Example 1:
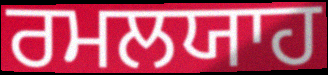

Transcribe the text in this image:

ਰਮਲਯਾਹ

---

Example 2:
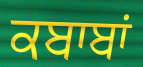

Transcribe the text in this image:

ਕਬਾਬਾਂ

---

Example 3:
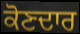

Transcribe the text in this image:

ਕੋਣਦਾਰ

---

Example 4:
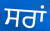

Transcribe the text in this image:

ਸਰਾਂ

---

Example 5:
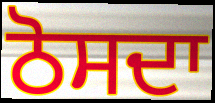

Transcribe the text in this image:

ਠੋਸਦਾ